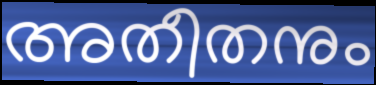
അതീതനും